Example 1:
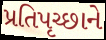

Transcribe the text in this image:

પ્રતિપૃચ્છાને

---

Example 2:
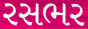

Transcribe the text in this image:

રસભર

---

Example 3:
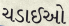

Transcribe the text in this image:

ચડાઈઓ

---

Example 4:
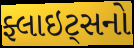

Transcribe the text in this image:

ફ્લાઇટ્સનો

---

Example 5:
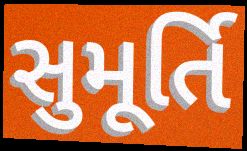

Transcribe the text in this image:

સુમૂર્તિ